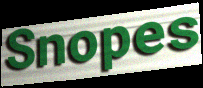
Snopes